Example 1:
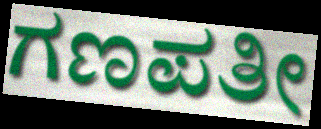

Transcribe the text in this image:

ಗಣಪತೀ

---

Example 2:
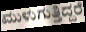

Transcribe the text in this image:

ಮುಳುಗುತ್ತಿದ್ದರೆ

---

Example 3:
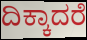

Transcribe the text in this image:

ದಿಕ್ಕಾದರೆ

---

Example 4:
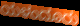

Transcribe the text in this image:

ಯಳಂದೂರು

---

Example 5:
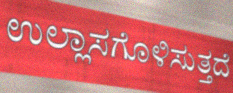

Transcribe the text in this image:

ಉಲ್ಲಾಸಗೊಳಿಸುತ್ತದೆ